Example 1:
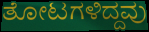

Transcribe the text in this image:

ತೋಟಗಳಿದ್ದವು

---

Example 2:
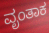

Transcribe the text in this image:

ವೃಂತಾಕ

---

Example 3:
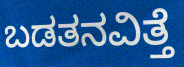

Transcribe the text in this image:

ಬಡತನವಿತ್ತೆ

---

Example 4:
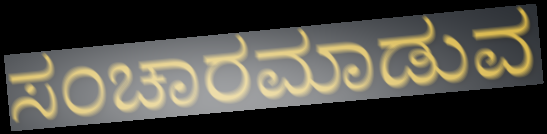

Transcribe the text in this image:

ಸಂಚಾರಮಾಡುವ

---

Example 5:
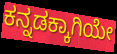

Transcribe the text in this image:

ಕನ್ನಡಕ್ಕಾಗಿಯೇ